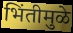
भिंतीमुळे